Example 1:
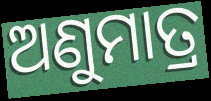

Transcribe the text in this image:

ଅଣୁମାତ୍ର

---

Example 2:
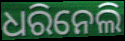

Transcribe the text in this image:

ଧରିନେଲି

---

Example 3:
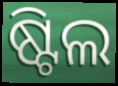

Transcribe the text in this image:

ଷ୍ଟିଲ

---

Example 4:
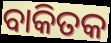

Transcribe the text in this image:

ବାକିତକ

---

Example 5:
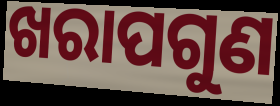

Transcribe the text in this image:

ଖରାପଗୁଣ